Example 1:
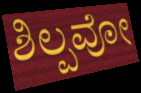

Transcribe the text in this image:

ಶಿಲ್ಪವೋ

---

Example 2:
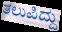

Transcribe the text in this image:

ತಲುಪಿದ್ದು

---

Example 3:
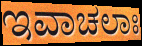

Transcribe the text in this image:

ಇವಾಚಲಾಃ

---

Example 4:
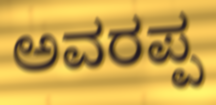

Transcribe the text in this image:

ಅವರಪ್ಪ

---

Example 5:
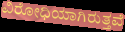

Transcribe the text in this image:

ವಿರೋಧಿಯಾಗಿರುತ್ತವೆ